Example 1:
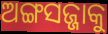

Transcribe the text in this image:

ଅଙ୍ଗସଜ୍ଜାକୁ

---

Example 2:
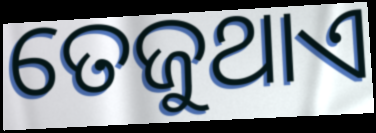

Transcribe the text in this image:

ତେଜୁଥାଏ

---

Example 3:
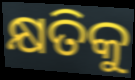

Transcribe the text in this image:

କ୍ଷତିକୁ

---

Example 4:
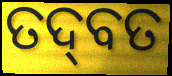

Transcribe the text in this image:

ତଦ୍‍ବତ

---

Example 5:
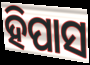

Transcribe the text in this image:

ହିପାସ